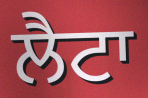
ਲੈਟਾ